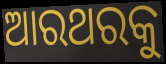
ଆରଥରକୁ